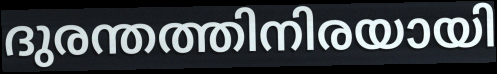
ദുരന്തത്തിനിരയായി